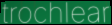
trochlear